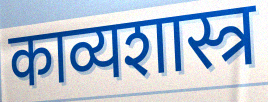
काव्यशास्त्र